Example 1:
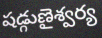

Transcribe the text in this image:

షడ్గుణైశ్వర్య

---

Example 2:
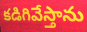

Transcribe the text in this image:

కడిగివేస్తాను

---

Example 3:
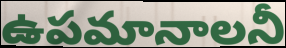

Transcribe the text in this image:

ఉపమానాలనీ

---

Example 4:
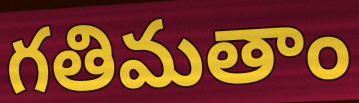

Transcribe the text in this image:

గతిమతాం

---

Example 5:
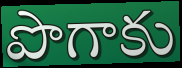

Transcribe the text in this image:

పొగాకు